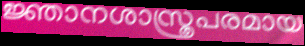
ജ്ഞാനശാസ്ത്രപരമായ